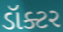
ડૉક્ટર